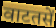
वाटतसें